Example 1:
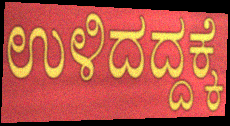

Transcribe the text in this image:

ಉಳಿದದ್ದಕ್ಕೆ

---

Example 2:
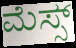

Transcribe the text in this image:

ಮೆಸ್ಸ್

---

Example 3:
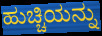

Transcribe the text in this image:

ಹುಚ್ಚಿಯನ್ನು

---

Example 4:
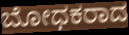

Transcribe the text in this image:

ಬೋಧಕರಾದ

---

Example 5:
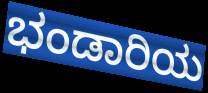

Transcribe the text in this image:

ಭಂಡಾರಿಯ